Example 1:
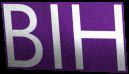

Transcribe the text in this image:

BIH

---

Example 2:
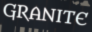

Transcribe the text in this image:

GRANITE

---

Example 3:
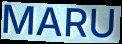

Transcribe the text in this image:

MARU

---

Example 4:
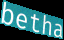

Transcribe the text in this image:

betha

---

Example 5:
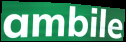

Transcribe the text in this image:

ambile